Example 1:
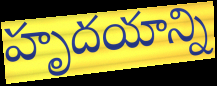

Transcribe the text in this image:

హృదయాన్ని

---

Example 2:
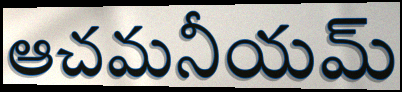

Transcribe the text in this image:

ఆచమనీయమ్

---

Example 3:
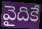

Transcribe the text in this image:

వైదికే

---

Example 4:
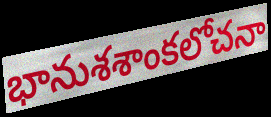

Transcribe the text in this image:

భానుశశాంకలోచనా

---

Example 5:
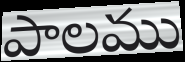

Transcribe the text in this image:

పాలము